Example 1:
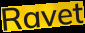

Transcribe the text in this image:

Ravet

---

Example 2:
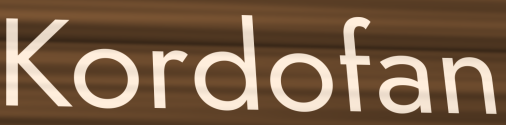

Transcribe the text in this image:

Kordofan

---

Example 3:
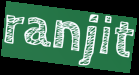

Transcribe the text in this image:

ranjit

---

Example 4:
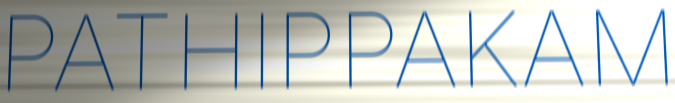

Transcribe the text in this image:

PATHIPPAKAM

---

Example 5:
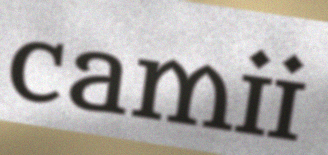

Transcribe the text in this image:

camii